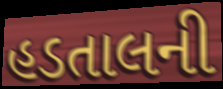
હડતાલની